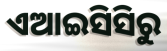
ଏଆଇସିସିରୁ